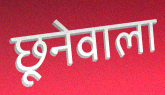
छूनेवाला